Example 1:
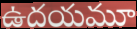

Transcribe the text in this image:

ఉదయమూ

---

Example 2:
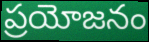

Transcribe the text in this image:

ప్రయోజనం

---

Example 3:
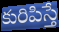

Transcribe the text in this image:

కురిపిస్తే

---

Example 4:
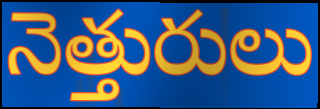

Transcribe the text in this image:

నెత్తురులు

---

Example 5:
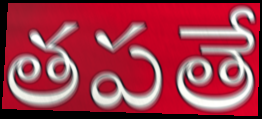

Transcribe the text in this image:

తపతే